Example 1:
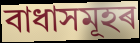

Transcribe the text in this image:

বাধাসমূহৰ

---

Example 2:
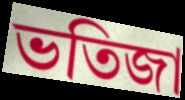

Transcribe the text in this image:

ভতিজা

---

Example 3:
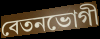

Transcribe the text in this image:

বেতনভোগী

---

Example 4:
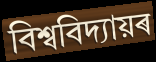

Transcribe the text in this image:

বিশ্ববিদ্যায়ৰ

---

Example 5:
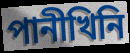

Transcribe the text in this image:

পানীখিনি